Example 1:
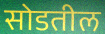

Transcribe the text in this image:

सोडतील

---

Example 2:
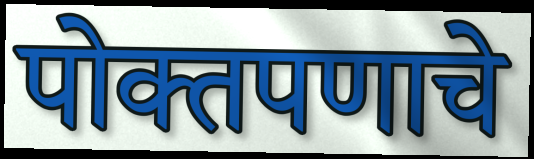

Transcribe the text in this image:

पोक्तपणाचे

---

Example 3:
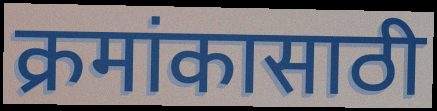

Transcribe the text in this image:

क्रमांकासाठी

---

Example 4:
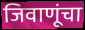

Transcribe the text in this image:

जिवाणूंचा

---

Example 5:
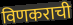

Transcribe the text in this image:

विणकराची